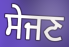
ਸੇਜਣ